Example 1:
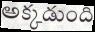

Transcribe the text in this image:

అక్కడుంది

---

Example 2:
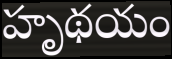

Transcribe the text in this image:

హృథయం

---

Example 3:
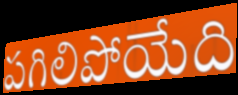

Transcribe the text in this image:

పగిలిపోయేది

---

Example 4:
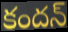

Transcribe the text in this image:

కందన్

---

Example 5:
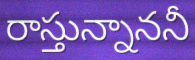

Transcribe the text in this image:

రాస్తున్నాననీ